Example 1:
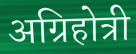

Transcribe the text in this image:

अग्रिहोत्री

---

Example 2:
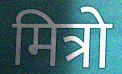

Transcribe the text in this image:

मित्रो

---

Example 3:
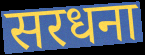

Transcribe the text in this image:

सरधना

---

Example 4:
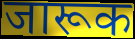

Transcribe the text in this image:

जारूक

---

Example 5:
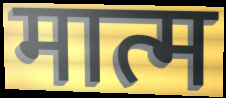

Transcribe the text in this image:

मात्म